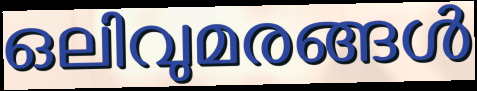
ഒലിവുമരങ്ങൾ